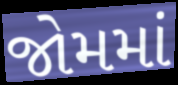
જોમમાં